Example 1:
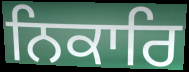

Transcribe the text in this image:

ਨਿਕਾਰਿ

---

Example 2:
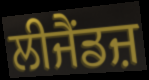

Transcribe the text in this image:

ਲੀਜੈਂਡਜ਼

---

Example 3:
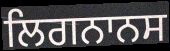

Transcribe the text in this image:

ਲਿਗਨਾਨਸ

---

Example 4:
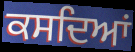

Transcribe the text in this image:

ਕਸਦਿਆਂ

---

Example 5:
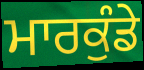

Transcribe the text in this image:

ਮਾਰਕੁੰਡੇ